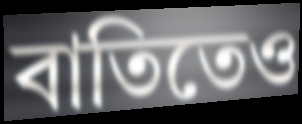
বাতিতেও